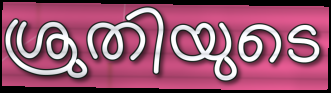
ശ്രുതിയുടെ